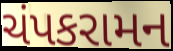
ચંપકરામન